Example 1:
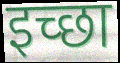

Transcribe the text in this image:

इच्‍छा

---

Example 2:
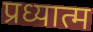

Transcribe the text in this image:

प्रध्यात्म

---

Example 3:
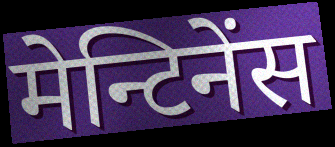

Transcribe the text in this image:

मेन्टिनेंस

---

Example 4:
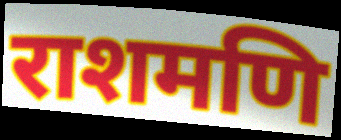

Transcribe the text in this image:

राशमणि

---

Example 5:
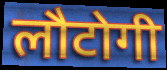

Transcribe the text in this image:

लौटोगी